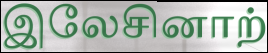
இலேசினாற்